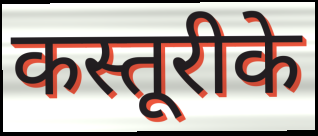
कस्तूरीके